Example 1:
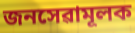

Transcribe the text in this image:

জনসেৱামূলক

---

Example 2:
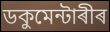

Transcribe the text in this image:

ডকুমেন্টাৰীৰ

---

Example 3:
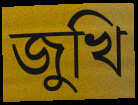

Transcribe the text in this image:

জুখি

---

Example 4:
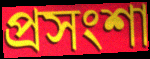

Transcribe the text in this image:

প্ৰসংশা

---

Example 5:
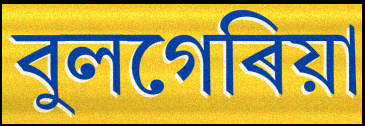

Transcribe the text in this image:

বুলগেৰিয়া